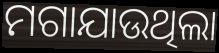
ମଗାଯାଉଥିଲା